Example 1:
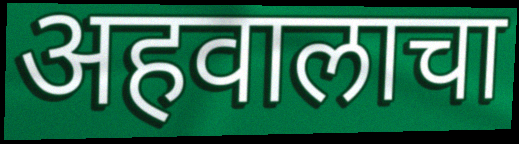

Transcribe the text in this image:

अहवालाचा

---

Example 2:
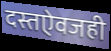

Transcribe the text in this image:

दस्तऐवजही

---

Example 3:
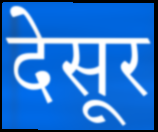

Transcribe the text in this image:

देसूर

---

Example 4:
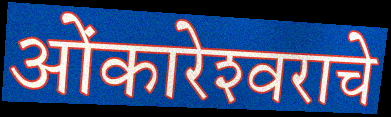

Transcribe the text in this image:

ओंकारेश्वराचे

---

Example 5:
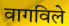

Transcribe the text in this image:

वागविले